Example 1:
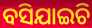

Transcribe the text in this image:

ବସିଯାଇଚି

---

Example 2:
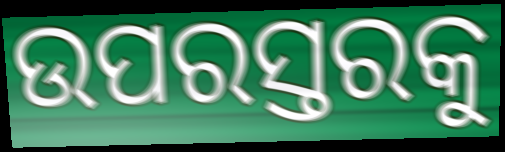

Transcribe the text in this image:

ଉପରସ୍ତରକୁ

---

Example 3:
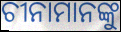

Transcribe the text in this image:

ଚୀନାମାନଙ୍କୁ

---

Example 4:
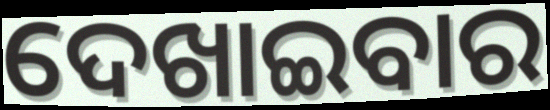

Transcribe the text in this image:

ଦେଖାଇବାର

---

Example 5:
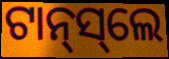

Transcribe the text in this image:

ଟାନ୍‌ସ୍‌ଲେ